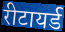
रीटायर्ड